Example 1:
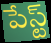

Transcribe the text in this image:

పేస్ట్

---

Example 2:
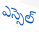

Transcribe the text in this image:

ఎస్సెల్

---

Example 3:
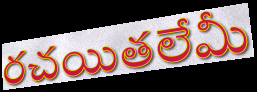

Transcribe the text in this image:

రచయితలేమీ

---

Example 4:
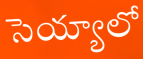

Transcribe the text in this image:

సెయ్యాలో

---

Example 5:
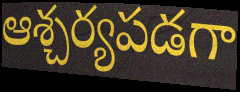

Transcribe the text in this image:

ఆశ్చర్యపడగా